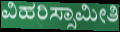
ವಿಹರಿಸ್ಸಾಮೀತಿ